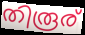
തിരൂര്